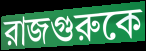
রাজগুরুকে